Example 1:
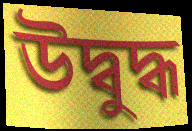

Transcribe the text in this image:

উদ্বুদ্ধ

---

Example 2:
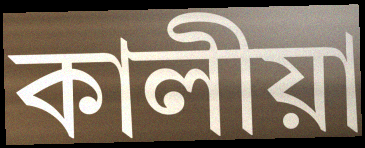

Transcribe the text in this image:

কালীয়া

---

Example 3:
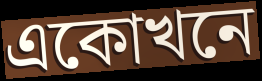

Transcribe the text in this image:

একোখনে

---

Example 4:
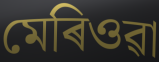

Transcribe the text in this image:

মেৰিওৱা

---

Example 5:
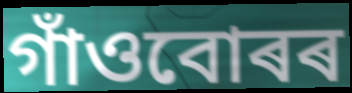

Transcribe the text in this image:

গাঁওবোৰৰ